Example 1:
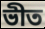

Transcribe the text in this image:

ভীত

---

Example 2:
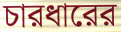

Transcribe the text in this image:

চারধারের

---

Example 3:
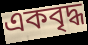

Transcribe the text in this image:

একবৃদ্ধ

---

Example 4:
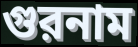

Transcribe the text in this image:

গুরনাম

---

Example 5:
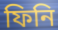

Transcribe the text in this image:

ফিনি